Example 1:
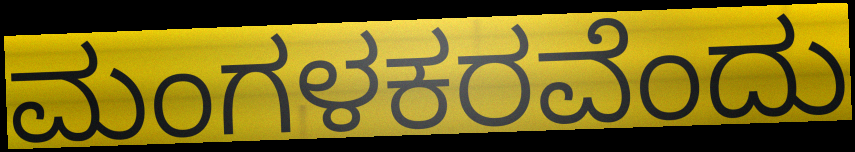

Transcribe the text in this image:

ಮಂಗಳಕರವೆಂದು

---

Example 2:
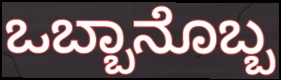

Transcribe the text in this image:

ಒಬ್ಬಾನೊಬ್ಬ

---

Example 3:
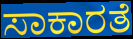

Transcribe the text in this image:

ಸಾಕಾರತೆ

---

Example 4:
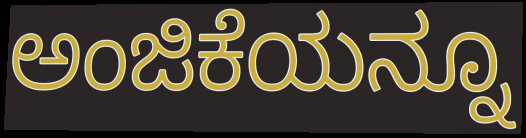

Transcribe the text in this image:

ಅಂಜಿಕೆಯನ್ನೂ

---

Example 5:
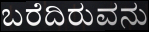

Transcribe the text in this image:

ಬರೆದಿರುವನು